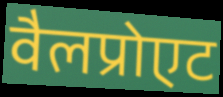
वैलप्रोएट